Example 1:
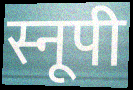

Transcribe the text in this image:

स्नूपी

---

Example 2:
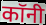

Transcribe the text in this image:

कॉनी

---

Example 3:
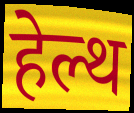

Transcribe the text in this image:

हेल्थ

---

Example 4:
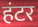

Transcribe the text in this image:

हंटर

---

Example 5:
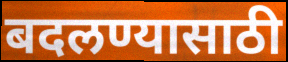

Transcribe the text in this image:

बदलण्यासाठी